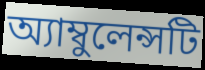
অ্যাম্বুলেন্সটি